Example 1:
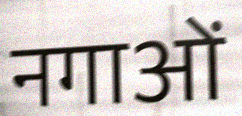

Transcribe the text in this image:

नगाओं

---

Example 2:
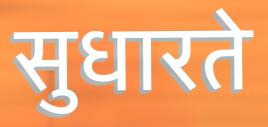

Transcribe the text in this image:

सुधारते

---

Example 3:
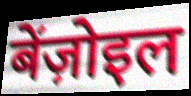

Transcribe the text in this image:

बेंज़ोइल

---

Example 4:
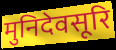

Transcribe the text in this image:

मुनिदेवसूरि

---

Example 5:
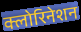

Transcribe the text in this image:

क्लोरिनेशन